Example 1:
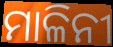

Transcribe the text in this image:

ମାଳିନୀ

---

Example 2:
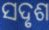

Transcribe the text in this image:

ସଦୃଶ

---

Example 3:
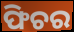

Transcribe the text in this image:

ଫିଚର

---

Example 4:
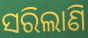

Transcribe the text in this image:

ସରିଲାଣି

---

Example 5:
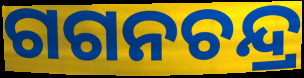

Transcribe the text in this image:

ଗଗନଚନ୍ଦ୍ର